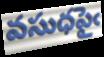
వసుధపైఁ